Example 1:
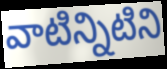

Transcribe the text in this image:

వాటిన్నిటిని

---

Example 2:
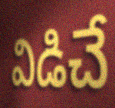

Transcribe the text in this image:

విడిచే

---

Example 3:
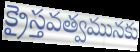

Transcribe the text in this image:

క్రైస్తవత్వమునకు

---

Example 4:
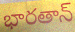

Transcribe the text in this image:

భారతాన్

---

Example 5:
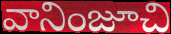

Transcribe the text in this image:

వానింజూచి